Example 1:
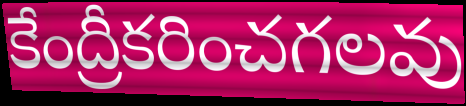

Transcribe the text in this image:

కేంద్రీకరించగలవు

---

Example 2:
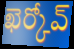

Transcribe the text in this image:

ఖెర్కోవ్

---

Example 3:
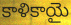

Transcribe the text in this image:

కాళికాయై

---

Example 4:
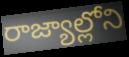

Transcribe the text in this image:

రాజ్యాల్లోని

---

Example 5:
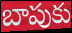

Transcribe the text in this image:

బాపుకు